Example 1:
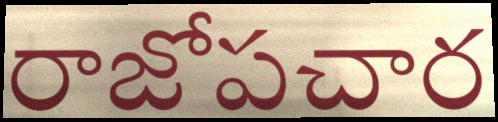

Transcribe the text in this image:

రాజోపచార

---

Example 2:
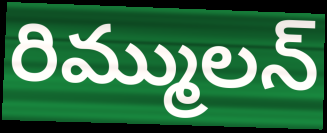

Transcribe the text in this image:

రిమ్ములన్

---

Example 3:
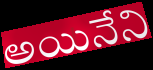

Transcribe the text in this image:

అయినేని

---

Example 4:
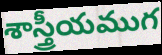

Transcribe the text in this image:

శాస్త్రీయముగ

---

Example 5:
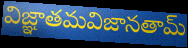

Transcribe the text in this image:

విజ్ఞాతమవిజానతామ్